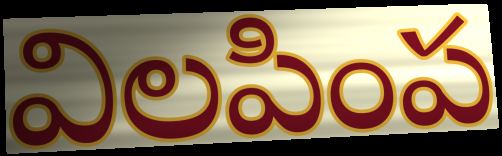
విలపింప